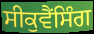
ਸੀਕੁਵੈਂਸਿੰਗ